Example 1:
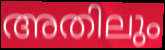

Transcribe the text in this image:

അതിലും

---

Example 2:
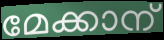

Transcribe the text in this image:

മേക്കാന്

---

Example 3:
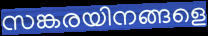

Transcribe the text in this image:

സങ്കരയിനങ്ങളെ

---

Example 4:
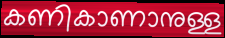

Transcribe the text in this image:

കണികാണാനുള്ള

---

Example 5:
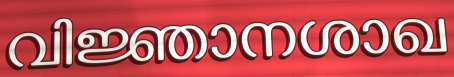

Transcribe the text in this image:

വിജ്ഞാനശാഖ